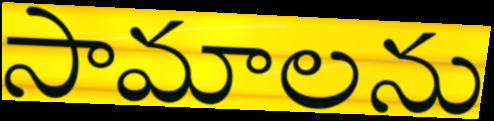
సామాలను